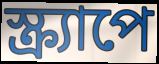
স্ক্র্যাপে